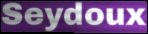
Seydoux